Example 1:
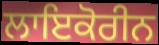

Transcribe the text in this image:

ਲਾਇਕੋਰੀਨ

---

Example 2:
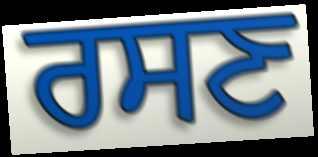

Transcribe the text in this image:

ਰਸਣ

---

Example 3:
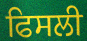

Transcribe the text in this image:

ਫਿਸਲੀ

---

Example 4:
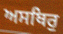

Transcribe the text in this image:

ਅਸਥਿਰੁ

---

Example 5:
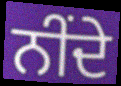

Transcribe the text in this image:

ਨੀਂਦੇ